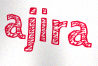
ajira